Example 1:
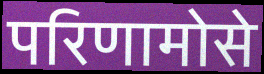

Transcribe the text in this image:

परिणामोसे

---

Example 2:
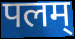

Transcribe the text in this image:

पलम्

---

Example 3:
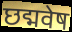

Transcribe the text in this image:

छद्मवेष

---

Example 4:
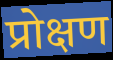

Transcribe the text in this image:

प्रोक्षण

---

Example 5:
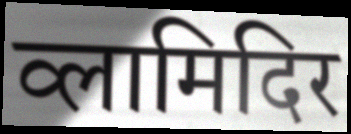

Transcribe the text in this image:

व्लामिदिर